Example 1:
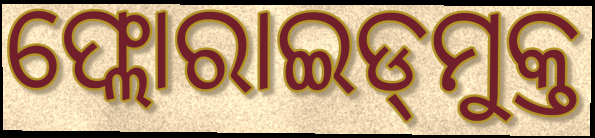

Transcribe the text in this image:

ଫ୍ଲୋରାଇଡ୍‌ମୁକ୍ତ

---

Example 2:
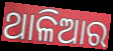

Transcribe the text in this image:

ଥାଳିଆର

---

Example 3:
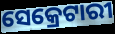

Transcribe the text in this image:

ସେକ୍ରେଟାରୀ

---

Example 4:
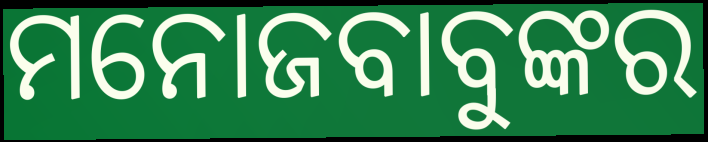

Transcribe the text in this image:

ମନୋଜବାବୁଙ୍କର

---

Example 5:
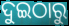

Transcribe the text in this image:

ଦୁଇଠାରୁ